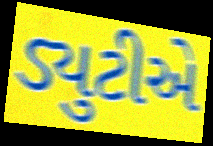
ડ્યુટીએ